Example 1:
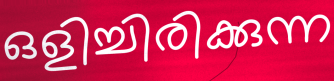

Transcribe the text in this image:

ഒളിച്ചിരിക്കുന്ന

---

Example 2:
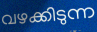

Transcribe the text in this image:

വഴക്കിടുന്ന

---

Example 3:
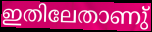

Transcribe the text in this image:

ഇതിലേതാണു്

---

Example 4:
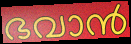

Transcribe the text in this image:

ഭവാൻ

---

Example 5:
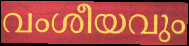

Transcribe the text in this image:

വംശീയവും